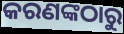
କରଣଙ୍କଠାରୁ